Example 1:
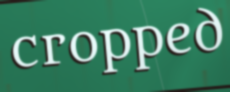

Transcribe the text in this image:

cropped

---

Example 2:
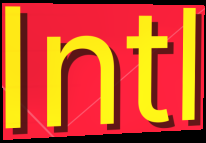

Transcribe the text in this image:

Intl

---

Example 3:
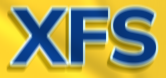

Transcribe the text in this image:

XFS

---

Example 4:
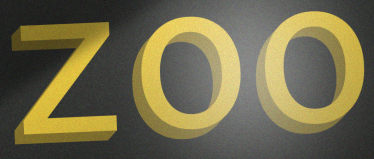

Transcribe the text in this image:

zoo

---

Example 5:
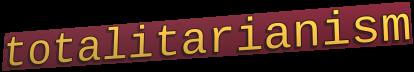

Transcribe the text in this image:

totalitarianism